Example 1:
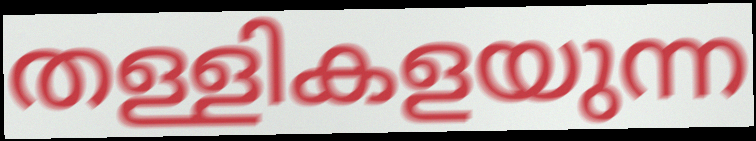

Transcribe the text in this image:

തള്ളികളയുന്ന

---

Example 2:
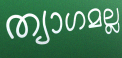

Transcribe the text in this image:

ത്യാഗമല്ല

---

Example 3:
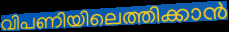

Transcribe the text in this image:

വിപണിയിലെത്തിക്കാൻ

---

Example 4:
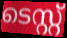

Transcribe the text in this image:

ടെസ്റ്റ്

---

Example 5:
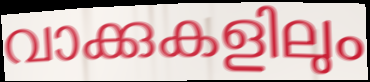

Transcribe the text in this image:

വാക്കുകളിലും